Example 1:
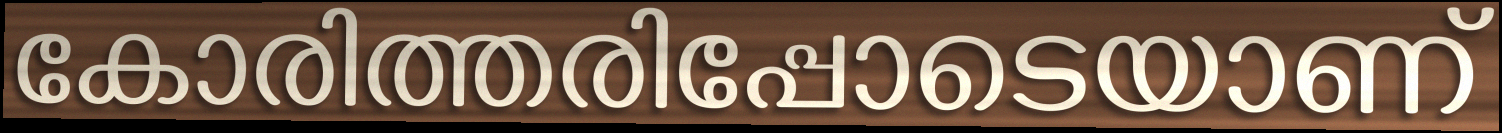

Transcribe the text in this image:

കോരിത്തരിപ്പോടെയാണ്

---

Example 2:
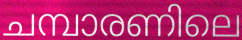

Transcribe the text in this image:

ചമ്പാരണിലെ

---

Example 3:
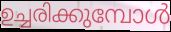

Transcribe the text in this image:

ഉച്ചരിക്കുമ്പോൾ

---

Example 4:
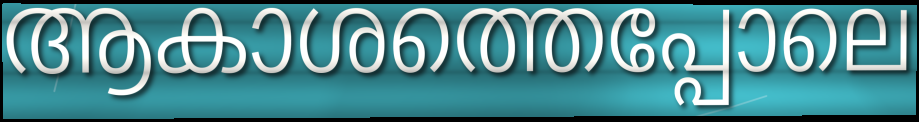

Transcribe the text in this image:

ആകാശത്തെപ്പോലെ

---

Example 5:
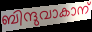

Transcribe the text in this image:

ബിന്ദുവാകാന്